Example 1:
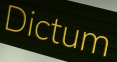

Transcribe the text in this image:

Dictum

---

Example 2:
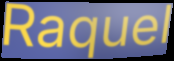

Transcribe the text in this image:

Raquel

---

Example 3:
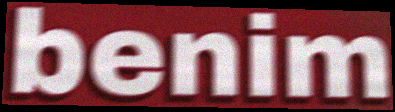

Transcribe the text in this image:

benim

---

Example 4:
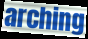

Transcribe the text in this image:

arching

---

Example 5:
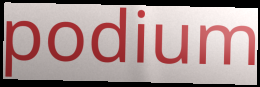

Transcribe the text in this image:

podium